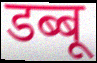
डब्बू